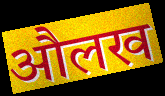
औलख